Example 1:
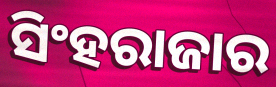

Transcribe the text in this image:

ସିଂହରାଜାର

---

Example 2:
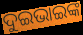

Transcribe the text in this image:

ଦୁଇଭାଇଙ୍କ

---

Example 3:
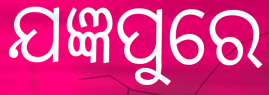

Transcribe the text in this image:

ଯଜ୍ଞପୁରେ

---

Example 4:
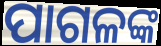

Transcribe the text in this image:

ପାଗଳଙ୍କ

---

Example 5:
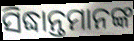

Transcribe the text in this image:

ସିଦ୍ଧାନ୍ତମାନଙ୍କ